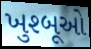
ખુશ્બૂઓ